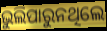
ଭୁଲିପାରୁନଥିଲେ